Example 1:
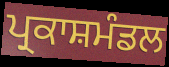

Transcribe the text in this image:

ਪ੍ਰਕਾਸ਼ਮੰਡਲ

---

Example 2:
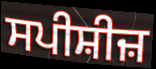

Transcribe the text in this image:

ਸਪੀਸ਼ੀਜ਼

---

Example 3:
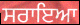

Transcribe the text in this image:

ਸਰਾਇਆ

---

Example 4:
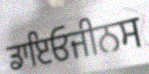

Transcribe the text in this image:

ਡਾਇਓਜੀਨਸ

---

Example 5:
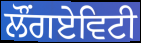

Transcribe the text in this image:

ਲੌਂਗਏਵਿਟੀ